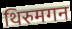
थिरुमगन